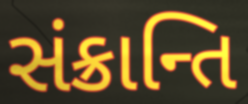
સંક્રાન્તિ